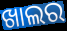
ଖାଲର